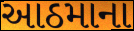
આઠમાના